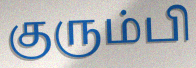
குரும்பி